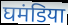
घमंडिया